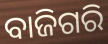
ବାଜିଗରି